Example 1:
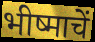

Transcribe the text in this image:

भीष्माचें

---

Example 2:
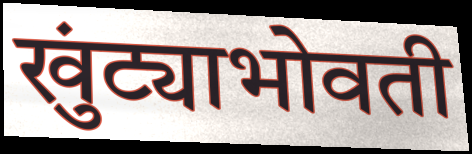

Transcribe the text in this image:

खुंट्याभोवती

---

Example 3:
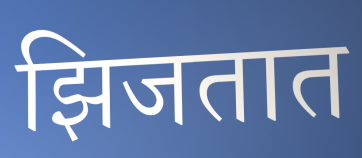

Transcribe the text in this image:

झिजतात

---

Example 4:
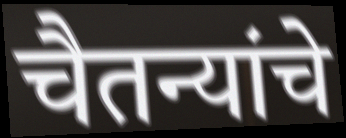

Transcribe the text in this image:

चैतन्यांचे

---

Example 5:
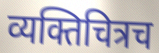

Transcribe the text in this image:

व्यक्तिचित्रच